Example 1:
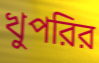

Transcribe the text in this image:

খুপরির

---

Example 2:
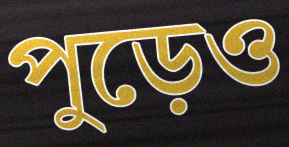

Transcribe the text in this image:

পুড়েও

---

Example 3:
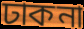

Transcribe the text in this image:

ঢাকনা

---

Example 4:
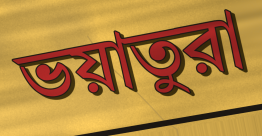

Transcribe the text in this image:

ভয়াতুরা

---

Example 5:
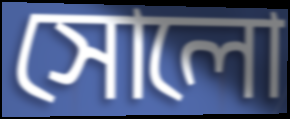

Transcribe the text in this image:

সোলো